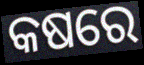
କଷରେ